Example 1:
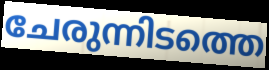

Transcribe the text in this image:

ചേരുന്നിടത്തെ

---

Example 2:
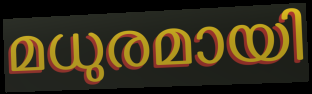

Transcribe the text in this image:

മധുരമായി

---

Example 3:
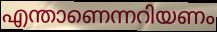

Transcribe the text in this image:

എന്താണെന്നറിയണം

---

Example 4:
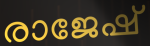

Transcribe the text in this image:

രാജേഷ്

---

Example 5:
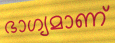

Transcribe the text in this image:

ഭാഗ്യമാണ്